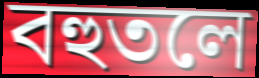
বহুতলে